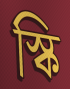
স্কি